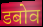
डबोव